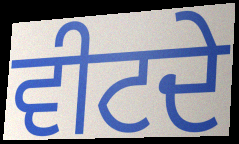
ਵੀਟਦੇ